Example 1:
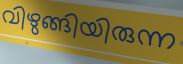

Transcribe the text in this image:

വിഴുങ്ങിയിരുന്ന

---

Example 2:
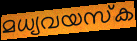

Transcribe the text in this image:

മധ്യവയസ്ക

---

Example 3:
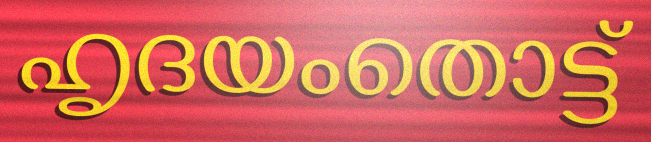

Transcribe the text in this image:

ഹൃദയംതൊട്ട്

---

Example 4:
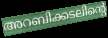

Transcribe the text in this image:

അറബിക്കടലിന്റെ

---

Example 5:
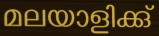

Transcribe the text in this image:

മലയാളിക്കു്